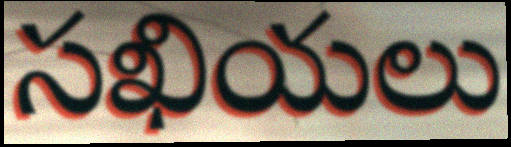
సఖియలు